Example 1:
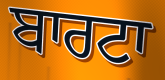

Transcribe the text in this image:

ਬਾਰਟਾ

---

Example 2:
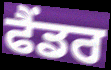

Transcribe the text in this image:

ਫੈਂਡਰ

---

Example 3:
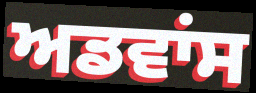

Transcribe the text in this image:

ਅਡਵਾਂਸ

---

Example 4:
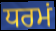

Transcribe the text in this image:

ਧਰਮਂ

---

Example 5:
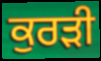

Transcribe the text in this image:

ਕੁਰੜੀ